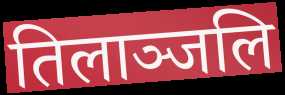
तिलाञ्जलि